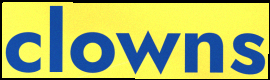
clowns